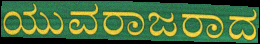
ಯುವರಾಜರಾದ